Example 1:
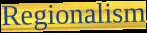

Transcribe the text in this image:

Regionalism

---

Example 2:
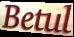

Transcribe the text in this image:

Betul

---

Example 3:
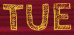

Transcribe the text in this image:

TUE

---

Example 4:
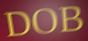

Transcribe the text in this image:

DOB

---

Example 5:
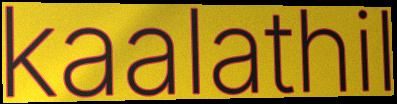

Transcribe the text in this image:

kaalathil